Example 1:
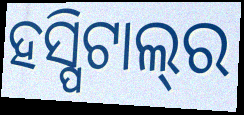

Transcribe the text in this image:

ହସ୍ପିଟାଲ୍‌ର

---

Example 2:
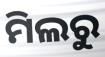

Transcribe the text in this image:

ମିଲରୁ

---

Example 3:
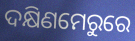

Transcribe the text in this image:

ଦକ୍ଷିଣମେରୁରେ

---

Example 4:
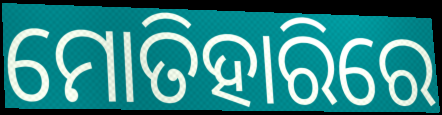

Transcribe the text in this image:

ମୋତିହାରିରେ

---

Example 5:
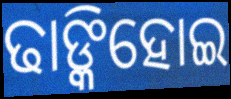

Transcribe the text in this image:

ଢାଙ୍କିହୋଇ